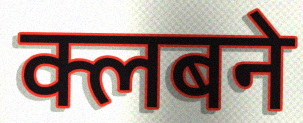
क्लबने